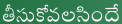
తీసుకోవలసిందే